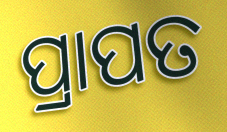
ପ୍ରାପତ